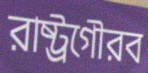
রাষ্ট্রগৌরব